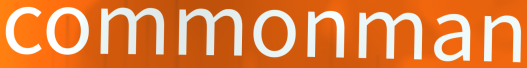
commonman